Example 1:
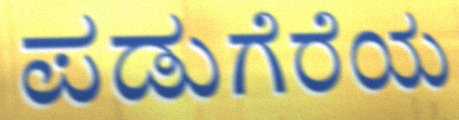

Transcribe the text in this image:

ಪಡುಗೆರೆಯ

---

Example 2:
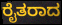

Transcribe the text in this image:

ರೈತರಾದ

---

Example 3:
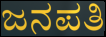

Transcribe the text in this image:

ಜನಪತಿ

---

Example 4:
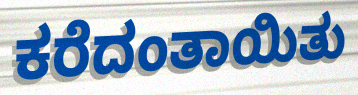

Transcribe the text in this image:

ಕರೆದಂತಾಯಿತು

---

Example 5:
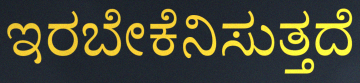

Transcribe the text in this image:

ಇರಬೇಕೆನಿಸುತ್ತದೆ